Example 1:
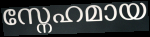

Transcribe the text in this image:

സ്നേഹമായ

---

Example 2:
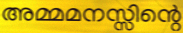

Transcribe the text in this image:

അമ്മമനസ്സിന്റെ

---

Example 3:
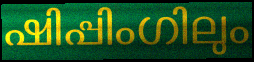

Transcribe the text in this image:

ഷിപ്പിംഗിലും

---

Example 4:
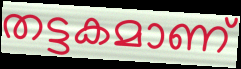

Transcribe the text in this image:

തട്ടകമാണ്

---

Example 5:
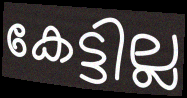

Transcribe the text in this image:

കേട്ടില്ല